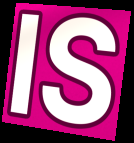
IS